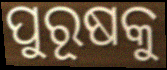
ପୁରୂଷକୁ